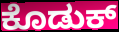
ಕೊಡುಕ್